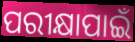
ପରୀକ୍ଷାପାଇଁ